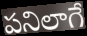
పనిలాగే